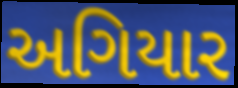
અગિયાર